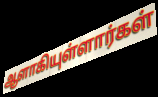
ஆளாகியுள்ளார்கள்